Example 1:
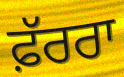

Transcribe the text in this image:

ਫ਼ੱਰਰਾ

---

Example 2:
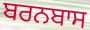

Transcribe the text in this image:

ਬਰਨਬਾਸ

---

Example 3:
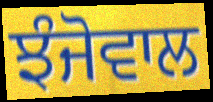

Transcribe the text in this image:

ਝੰਜੋਵਾਲ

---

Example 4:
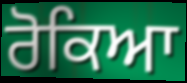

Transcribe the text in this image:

ਰੋਕਿਆ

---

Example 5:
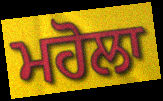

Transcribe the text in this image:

ਮਹੋਲਾ